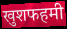
खुशफहमी